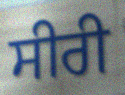
ਸੀਰੀ